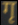
गृ